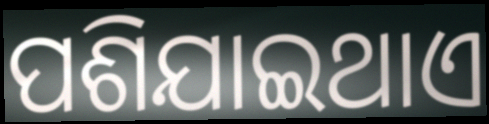
ପଶିଯାଇଥାଏ